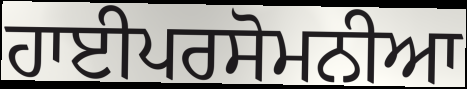
ਹਾਈਪਰਸੋਮਨੀਆ